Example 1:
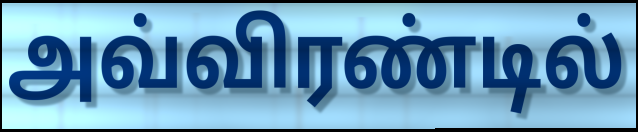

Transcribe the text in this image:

அவ்விரண்டில்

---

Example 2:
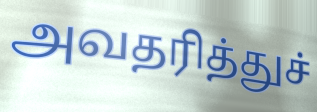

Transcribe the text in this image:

அவதரித்துச்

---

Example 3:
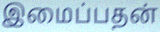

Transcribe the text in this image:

இமைப்பதன்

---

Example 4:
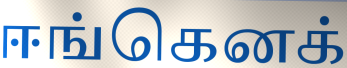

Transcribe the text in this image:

ஈங்கெனக்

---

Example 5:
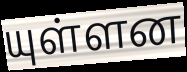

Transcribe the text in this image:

யுள்ளன